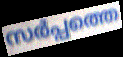
സർപ്പത്തെ